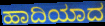
ಹಾದಿಯಾದ